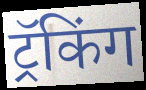
ट्रॅकिंग